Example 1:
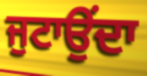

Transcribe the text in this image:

ਜੁਟਾਉਂਦਾ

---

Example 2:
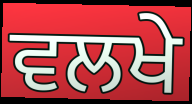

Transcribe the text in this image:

ਵਲਖੇ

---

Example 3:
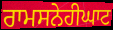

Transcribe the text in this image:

ਰਾਮਸਨੇਹੀਘਾਟ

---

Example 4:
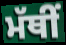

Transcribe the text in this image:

ਮੱਥੀਂ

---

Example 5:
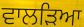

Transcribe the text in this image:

ਵਾਲੜਿਆ